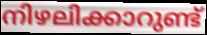
നിഴലിക്കാറുണ്ട്